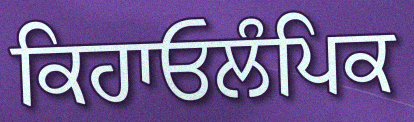
ਕਿਹਾਓਲੰਪਿਕ